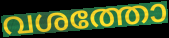
വശത്തോ